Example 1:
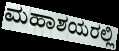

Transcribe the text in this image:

ಮಹಾಶಯರಲ್ಲಿ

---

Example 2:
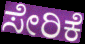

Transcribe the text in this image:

ಸೇರಿಕೆ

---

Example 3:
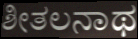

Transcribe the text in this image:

ಶೀತಲನಾಥ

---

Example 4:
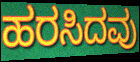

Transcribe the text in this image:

ಹರಸಿದವು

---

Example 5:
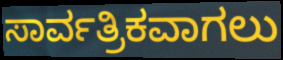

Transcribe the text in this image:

ಸಾರ್ವತ್ರಿಕವಾಗಲು